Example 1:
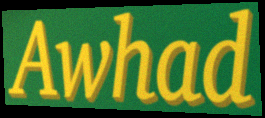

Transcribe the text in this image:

Awhad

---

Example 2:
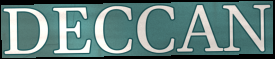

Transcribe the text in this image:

DECCAN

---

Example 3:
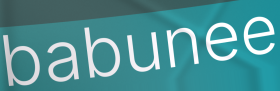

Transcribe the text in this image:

babunee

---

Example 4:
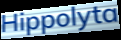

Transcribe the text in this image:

Hippolyta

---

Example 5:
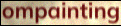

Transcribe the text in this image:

ompainting